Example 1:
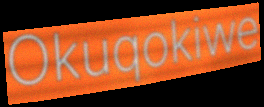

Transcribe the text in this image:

Okuqokiwe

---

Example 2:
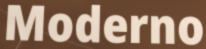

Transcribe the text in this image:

Moderno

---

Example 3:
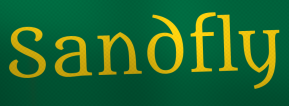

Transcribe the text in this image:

Sandfly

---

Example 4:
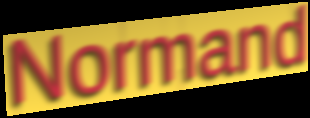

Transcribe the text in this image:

Normand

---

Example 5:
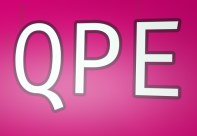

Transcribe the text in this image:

QPE